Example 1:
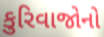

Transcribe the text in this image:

કુરિવાજોનો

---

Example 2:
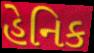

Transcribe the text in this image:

હેનિક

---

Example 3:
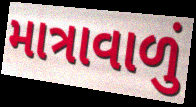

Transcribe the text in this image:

માત્રાવાળું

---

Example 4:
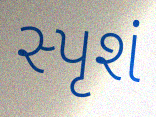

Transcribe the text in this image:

સ્પૃશં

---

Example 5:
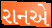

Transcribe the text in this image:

રાનએ